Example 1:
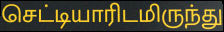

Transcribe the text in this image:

செட்டியாரிடமிருந்து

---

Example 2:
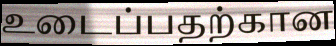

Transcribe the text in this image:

உடைப்பதற்கான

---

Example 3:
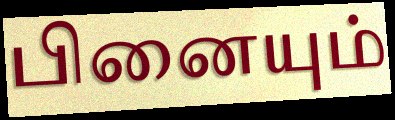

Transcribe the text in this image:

பினையும்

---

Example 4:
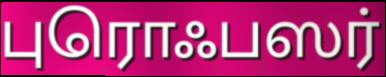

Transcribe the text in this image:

புரொஃபஸர்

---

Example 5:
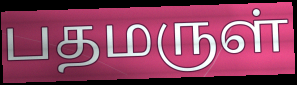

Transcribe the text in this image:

பதமருள்